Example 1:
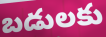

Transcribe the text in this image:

బడులకు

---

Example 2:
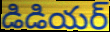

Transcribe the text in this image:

డిడియర్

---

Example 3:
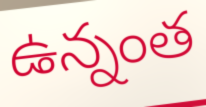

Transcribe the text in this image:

ఉన్నంత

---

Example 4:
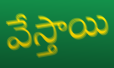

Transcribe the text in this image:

వేస్తాయి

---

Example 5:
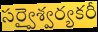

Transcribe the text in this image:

సర్వైశ్వర్యకరీ